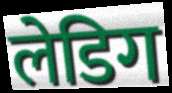
लेडिग